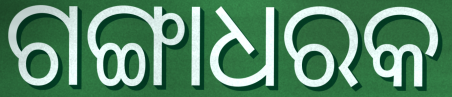
ଗଙ୍ଗାଧରକ